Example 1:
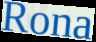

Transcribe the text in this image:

Rona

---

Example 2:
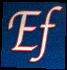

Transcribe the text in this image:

Ef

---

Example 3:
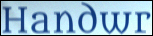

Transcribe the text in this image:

Handwr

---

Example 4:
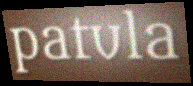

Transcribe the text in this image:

patula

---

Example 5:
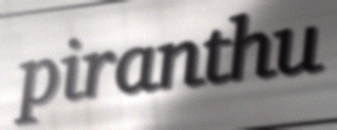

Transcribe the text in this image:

piranthu